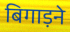
बिगाड़ने